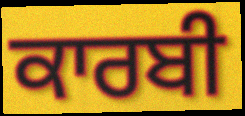
ਕਾਰਬੀ